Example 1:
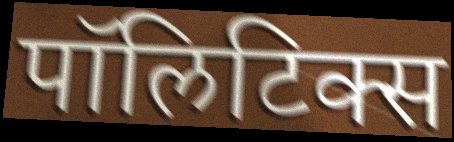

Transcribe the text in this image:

पॉलिटिक्स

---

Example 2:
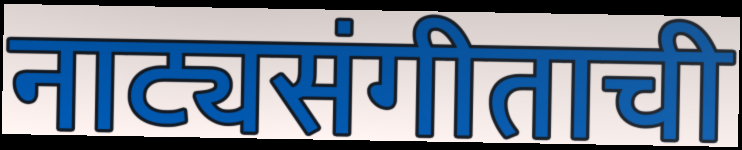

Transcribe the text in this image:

नाट्यसंगीताची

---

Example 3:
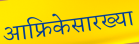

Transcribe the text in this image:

आफ्रिकेसारख्या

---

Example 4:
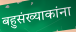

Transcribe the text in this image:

बहुसंख्याकांना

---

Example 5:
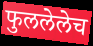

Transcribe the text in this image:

फुललेलेच